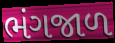
ભંગજાળ